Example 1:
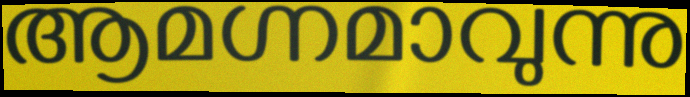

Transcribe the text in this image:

ആമഗ്നമാവുന്നു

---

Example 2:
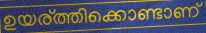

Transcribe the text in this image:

ഉയര്ത്തിക്കൊണ്ടാണ്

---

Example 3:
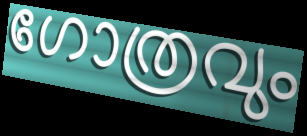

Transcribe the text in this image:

ഗോത്രവും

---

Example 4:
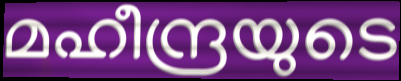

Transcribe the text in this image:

മഹീന്ദ്രയുടെ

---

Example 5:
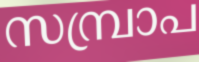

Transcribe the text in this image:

സമ്പ്രാപ